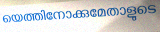
യെത്തിനോക്കുമേതാളുടെ